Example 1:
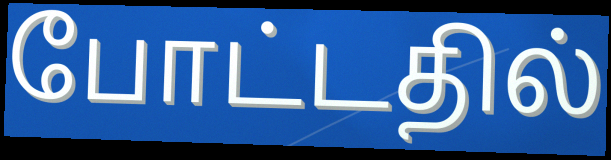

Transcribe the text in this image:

போட்டதில்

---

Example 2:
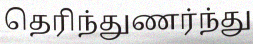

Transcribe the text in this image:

தெரிந்துணர்ந்து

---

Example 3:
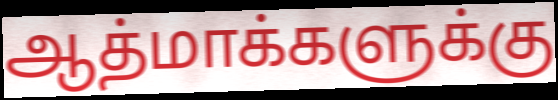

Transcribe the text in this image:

ஆத்மாக்களுக்கு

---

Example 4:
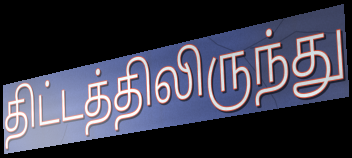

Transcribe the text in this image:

திட்டத்திலிருந்து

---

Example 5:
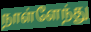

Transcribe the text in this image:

நாள்ளேந்து